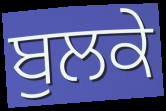
ਬੁਲਕੇ